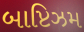
બાપ્ટિઝમ